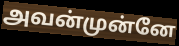
அவன்முன்னே